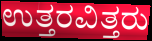
ಉತ್ತರವಿತ್ತರು